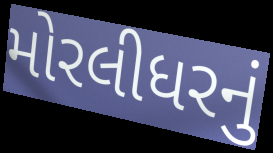
મોરલીધરનું